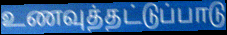
உணவுத்தட்டுப்பாடு